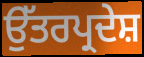
ਉੱਤਰਪ੍ਰਦੇਸ਼